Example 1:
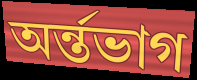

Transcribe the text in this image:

অৰ্ন্তভাগ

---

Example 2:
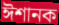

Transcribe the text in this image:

ঈশানক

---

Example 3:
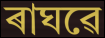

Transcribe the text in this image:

ৰাঘৱে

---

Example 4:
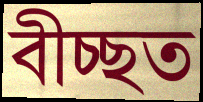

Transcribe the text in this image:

বীচ্ছত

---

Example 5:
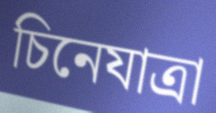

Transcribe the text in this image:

চিনেযাত্ৰা